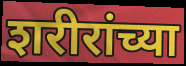
शरीरांच्या